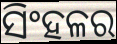
ସିଂହଳର